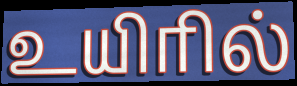
உயிரில்